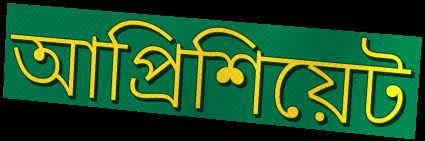
আপ্রিশিয়েট